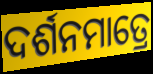
ଦର୍ଶନମାତ୍ରେ